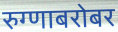
रुग्णाबरोबर